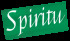
Spiritu